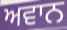
ਅਵਾਨ